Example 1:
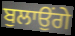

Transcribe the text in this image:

ਬੁਲਾਉਂਗੇ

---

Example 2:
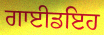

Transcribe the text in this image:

ਗਾਈਡਇਹ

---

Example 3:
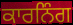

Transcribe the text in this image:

ਕਾਰਨਿੰਗ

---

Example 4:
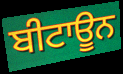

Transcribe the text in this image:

ਬੀਟਾਊਨ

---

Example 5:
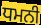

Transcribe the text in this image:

ਧਮਨੀ